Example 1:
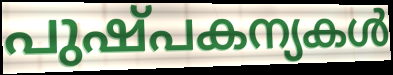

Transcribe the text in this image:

പുഷ്പകന്യകൾ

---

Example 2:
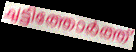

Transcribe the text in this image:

ചുട്ടിത്തോർത്ത്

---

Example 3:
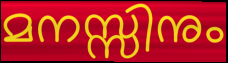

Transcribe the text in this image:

മനസ്സിനും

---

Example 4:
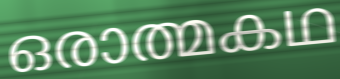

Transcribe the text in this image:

ഒരാത്മകഥ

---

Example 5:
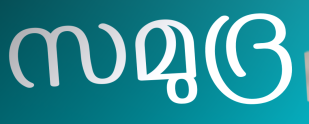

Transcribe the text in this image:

സമുദ്ര